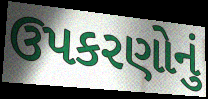
ઉપકરણોનું